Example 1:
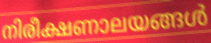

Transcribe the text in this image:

നിരീക്ഷണാലയങ്ങൾ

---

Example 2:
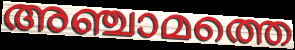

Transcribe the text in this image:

അഞ്ചാമത്തെ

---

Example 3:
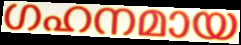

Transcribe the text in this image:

ഗഹനമായ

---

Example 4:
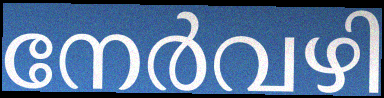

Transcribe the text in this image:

നേർവഴി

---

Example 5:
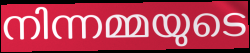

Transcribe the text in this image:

നിന്നമ്മയുടെ